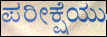
ಪರೀಕ್ಷೆಯು